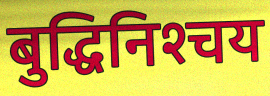
बुद्धिनिश्चय